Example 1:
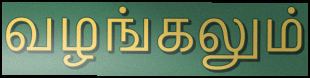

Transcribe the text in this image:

வழங்கலும்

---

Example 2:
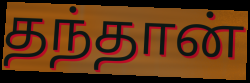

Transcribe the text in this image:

தந்தான்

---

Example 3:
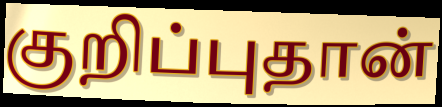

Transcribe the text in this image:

குறிப்புதான்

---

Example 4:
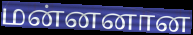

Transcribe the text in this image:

மன்னனான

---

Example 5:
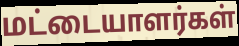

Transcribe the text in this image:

மட்டையாளர்கள்